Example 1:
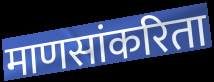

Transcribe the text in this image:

माणसांकरिता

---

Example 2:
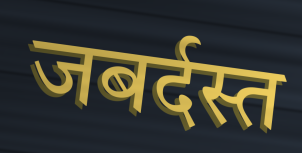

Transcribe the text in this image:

जबर्दस्त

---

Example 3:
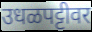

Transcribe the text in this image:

उधळपट्टीवर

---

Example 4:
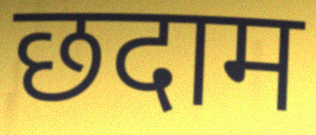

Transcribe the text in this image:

छदाम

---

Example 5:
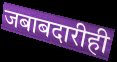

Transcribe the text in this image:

जबाबदारीही